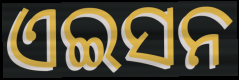
ଏଇସନ